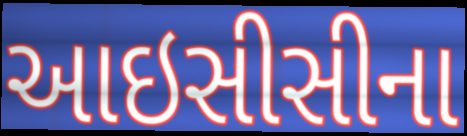
આઇસીસીના